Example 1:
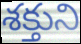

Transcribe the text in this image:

శక్తుని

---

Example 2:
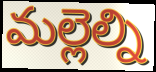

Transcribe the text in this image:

మల్లెల్ని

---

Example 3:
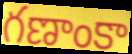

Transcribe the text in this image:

గణాంకా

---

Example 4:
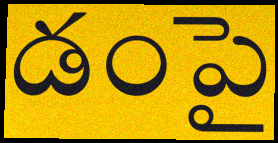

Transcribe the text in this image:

డంపై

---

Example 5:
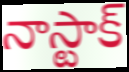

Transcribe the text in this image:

నాస్టాక్